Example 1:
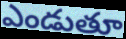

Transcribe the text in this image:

ఎండుతూ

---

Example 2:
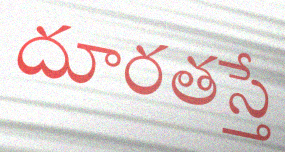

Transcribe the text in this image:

దూరతస్తే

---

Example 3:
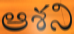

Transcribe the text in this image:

ఆశని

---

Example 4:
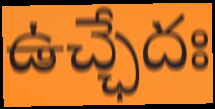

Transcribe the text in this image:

ఉచ్ఛేదః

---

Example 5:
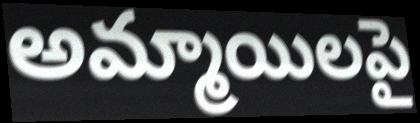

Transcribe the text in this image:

అమ్మాయిలపై